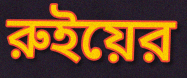
রুইয়ের